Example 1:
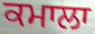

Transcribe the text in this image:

ਕਮਾਲਾ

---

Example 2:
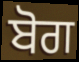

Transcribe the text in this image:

ਬੋਗ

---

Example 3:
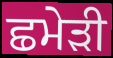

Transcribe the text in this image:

ਛਮੇੜੀ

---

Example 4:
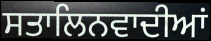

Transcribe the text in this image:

ਸਤਾਲਿਨਵਾਦੀਆਂ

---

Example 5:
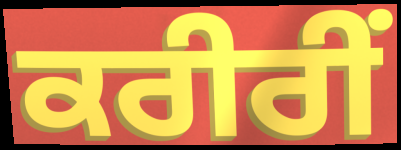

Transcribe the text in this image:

ਕਰੀਰੀਂ